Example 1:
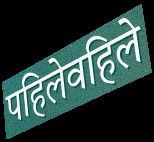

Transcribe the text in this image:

पहिलेवहिले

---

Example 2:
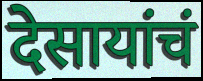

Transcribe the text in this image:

देसायांचं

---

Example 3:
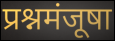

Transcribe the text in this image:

प्रश्नमंजूषा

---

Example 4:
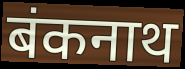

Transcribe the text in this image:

बंकनाथ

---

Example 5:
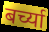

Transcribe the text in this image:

बर्च्या